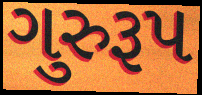
ગુરુરૂપ